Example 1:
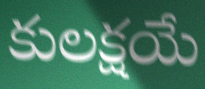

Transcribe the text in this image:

కులక్షయే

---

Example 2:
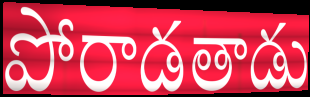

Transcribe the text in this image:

పోరాడతాడు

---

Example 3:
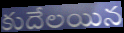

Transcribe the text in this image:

కుదేలయిన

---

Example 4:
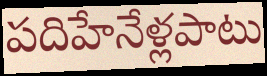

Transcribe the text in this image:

పదిహేనేళ్లపాటు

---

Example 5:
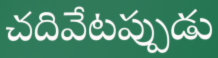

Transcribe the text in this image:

చదివేటప్పుడు